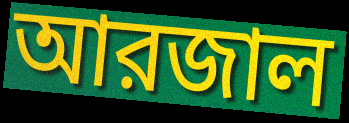
আরজাল